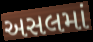
અસલમાં